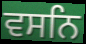
ਵਸਨਿ